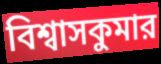
বিশ্বাসকুমার